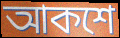
আকশে